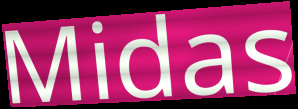
Midas